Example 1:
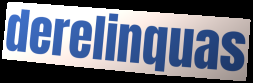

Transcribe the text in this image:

derelinquas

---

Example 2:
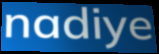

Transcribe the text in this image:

nadiye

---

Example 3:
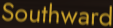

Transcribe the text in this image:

Southward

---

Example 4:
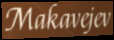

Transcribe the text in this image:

Makavejev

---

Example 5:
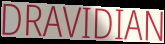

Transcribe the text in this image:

DRAVIDIAN